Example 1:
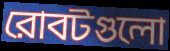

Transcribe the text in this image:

রোবটগুলো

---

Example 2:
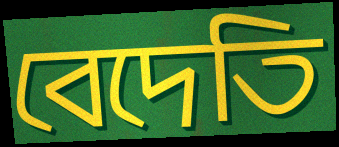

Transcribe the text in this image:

বেদেতি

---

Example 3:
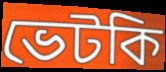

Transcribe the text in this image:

ভেটকি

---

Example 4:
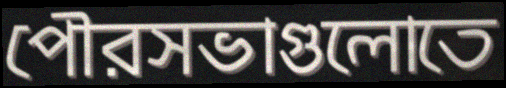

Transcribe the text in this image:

পৌরসভাগুলোতে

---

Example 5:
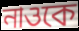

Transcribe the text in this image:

নাওকে